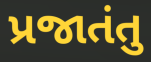
પ્રજાતંતુ